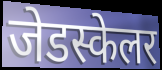
जेडस्केलर